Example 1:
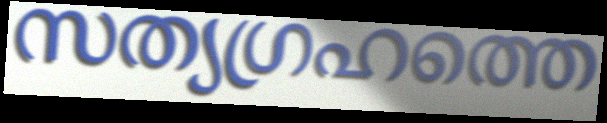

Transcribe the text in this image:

സത്യഗ്രഹത്തെ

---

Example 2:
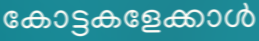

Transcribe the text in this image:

കോട്ടകളേക്കാൾ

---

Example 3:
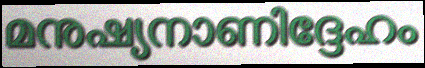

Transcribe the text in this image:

മനുഷ്യനാണിദ്ദേഹം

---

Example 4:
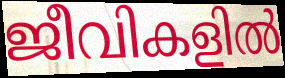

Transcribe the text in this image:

ജീവികളിൽ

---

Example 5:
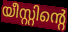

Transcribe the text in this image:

യീസ്റ്റിന്റെ